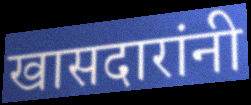
खासदारांनी